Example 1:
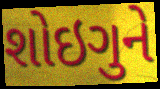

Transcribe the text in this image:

શોઇગુને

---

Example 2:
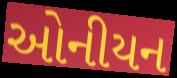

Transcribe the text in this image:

ઓનીયન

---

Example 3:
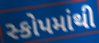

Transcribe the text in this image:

સ્કોપમાંથી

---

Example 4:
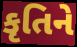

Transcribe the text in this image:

કૃતિને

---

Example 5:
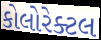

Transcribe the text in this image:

કોલોરેક્ટલ